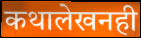
कथालेखनही